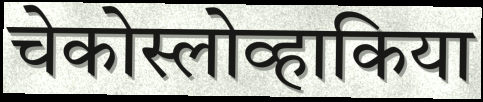
चेकोस्लोव्हाकिया